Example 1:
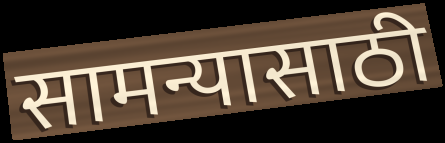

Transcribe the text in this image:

सामन्यासाठी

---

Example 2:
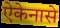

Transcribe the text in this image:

ऐकेनासे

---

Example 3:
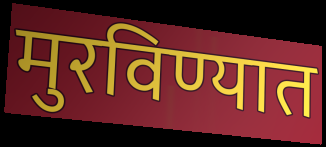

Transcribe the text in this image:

मुरविण्यात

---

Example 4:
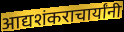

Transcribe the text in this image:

आद्यशंकराचार्यांनी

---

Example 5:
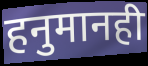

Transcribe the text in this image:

हनुमानही